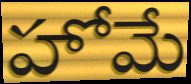
హోమే